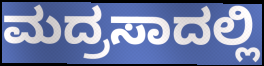
ಮದ್ರಸಾದಲ್ಲಿ